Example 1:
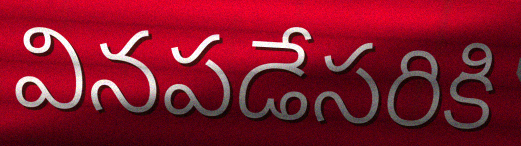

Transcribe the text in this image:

వినపడేసరికి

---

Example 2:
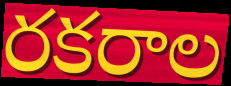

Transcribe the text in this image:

రకరాల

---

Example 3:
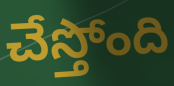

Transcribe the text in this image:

చేస్తోంది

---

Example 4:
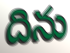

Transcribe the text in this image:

దిను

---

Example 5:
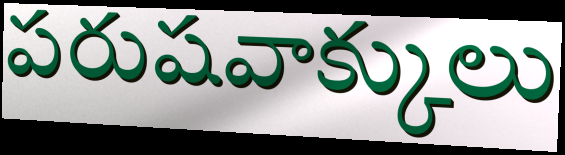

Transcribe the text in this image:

పరుషవాక్కులు